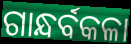
ଗାନ୍ଧର୍ବକଳା